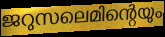
ജറുസലെമിന്റെയും